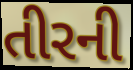
તીરની